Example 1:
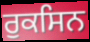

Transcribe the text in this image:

ਰੁਕਸਿਨ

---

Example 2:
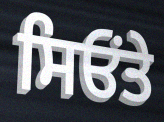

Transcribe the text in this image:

ਸਿਓਂਤੇ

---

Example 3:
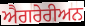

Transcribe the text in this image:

ਐਗਰੇਰੀਅਨ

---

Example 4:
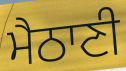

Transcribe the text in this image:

ਮੈਠਾਣੀ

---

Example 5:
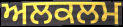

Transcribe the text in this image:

ਅਲਕਲਮ